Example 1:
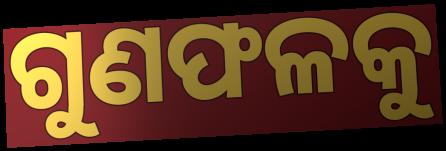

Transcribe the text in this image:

ଗୁଣଫଳକୁ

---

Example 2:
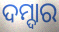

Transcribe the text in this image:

ଦମ୍ଦାର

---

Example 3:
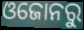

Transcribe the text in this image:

ଓଜୋନରୁ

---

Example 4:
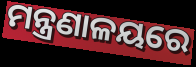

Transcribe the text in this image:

ମନ୍ତ୍ରଣାଳୟରେ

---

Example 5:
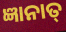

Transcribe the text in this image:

ଜ୍ଞାନାତ୍